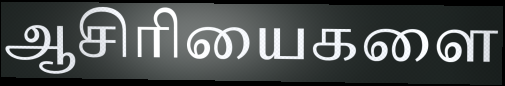
ஆசிரியைகளை